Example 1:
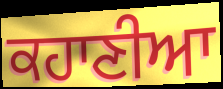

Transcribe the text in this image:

ਕਹਾਣੀਆ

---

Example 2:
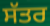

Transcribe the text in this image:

ਸੱਤਰ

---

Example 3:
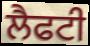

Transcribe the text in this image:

ਲੈਫਟੀ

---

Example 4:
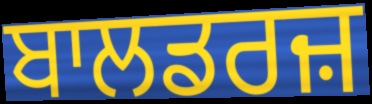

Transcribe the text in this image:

ਬਾਲਡਰਜ਼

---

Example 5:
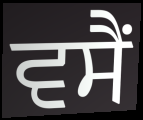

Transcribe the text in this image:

ਵਸੈਂ